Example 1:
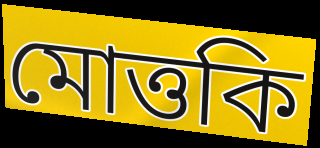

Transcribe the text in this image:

মোত্তকি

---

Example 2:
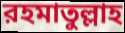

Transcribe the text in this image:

রহমাতুল্লাহ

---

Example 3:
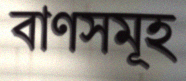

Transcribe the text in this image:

বাণসমূহ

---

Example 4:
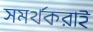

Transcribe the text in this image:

সমর্থকরাই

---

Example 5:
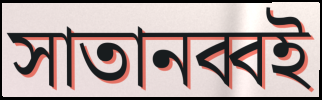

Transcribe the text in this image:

সাতানব্বই